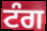
ਟੰਗ